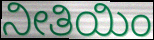
ನೀತಿಯಿಂ